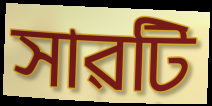
সাৱটি